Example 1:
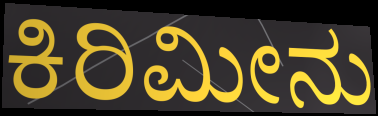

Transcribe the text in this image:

ಕಿರಿಮೀನು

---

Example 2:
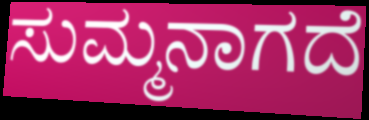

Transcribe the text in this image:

ಸುಮ್ಮನಾಗದೆ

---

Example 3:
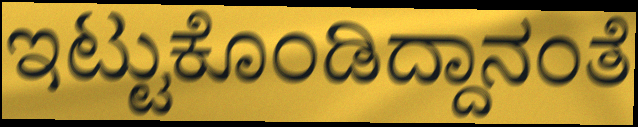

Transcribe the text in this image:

ಇಟ್ಟುಕೊಂಡಿದ್ದಾನಂತೆ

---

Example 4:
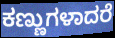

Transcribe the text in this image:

ಕಣ್ಣುಗಳಾದರೆ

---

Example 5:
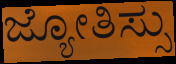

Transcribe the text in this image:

ಜ್ಯೋತಿಸ್ಸು